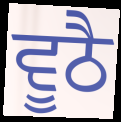
ਵੂਠੈ